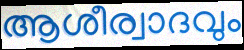
ആശീര്വാദവും